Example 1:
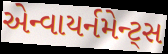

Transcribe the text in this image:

એન્વાયર્નમેન્ટ્સ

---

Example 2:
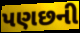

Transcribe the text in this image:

પણછની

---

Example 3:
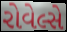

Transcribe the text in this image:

રોવેલ્સે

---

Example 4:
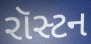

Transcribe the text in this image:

રૉસ્ટન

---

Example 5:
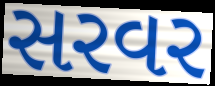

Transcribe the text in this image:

સરવર